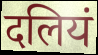
दलियं